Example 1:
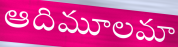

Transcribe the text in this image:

ఆదిమూలమా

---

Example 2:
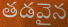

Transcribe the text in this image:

తడవైన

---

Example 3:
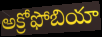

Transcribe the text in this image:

అక్రోఫోబియా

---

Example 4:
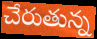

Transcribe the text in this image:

చేరుతున్న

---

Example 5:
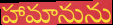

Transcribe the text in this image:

హామానును